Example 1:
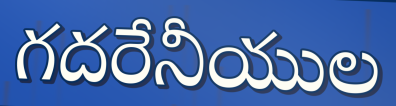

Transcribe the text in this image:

గదరేనీయుల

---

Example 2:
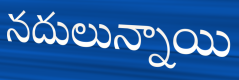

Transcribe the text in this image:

నదులున్నాయి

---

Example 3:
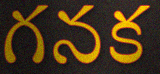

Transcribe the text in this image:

గనక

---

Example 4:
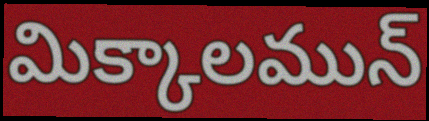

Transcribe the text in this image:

మిక్కాలమున్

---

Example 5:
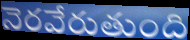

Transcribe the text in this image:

నెరవేరుతుంది